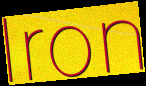
Iron